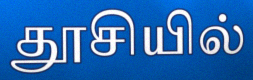
தூசியில்